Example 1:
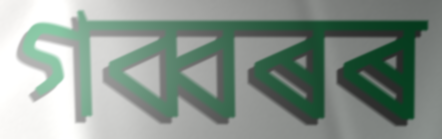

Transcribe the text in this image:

গব্বৰৰ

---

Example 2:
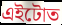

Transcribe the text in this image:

এইটোত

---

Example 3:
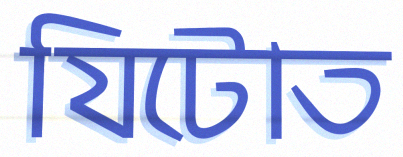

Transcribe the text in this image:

যিটোত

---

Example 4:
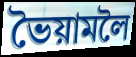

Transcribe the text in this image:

ভৈয়ামলৈ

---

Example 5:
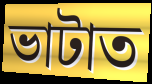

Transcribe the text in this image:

ভাটাত